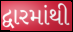
દ્વારમાંથી